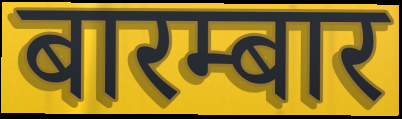
बारम्बार